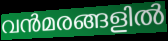
വൻമരങ്ങളിൽ